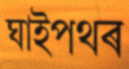
ঘাইপথৰ